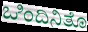
ಒಿಂದಿನಿತೊ